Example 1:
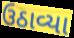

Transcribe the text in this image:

ઉઠાવ્યા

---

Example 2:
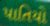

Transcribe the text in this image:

પાતિયો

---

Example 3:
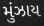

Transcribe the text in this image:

મુંઝાય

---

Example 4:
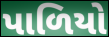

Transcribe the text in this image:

પાળિયો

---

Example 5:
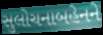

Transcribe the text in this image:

સુલોચનાબહેનને